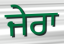
ਜੇਰਾ